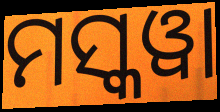
ମସ୍କୱା